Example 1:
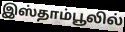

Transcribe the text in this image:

இஸ்தாம்பூலில்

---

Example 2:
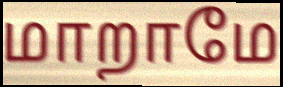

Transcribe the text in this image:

மாறாமே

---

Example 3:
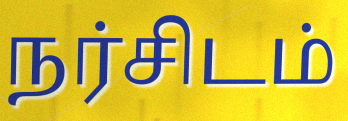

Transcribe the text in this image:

நர்சிடம்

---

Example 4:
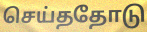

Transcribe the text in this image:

செய்ததோடு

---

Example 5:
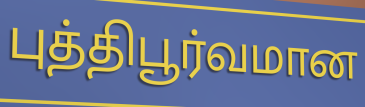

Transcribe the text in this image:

புத்திபூர்வமான